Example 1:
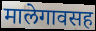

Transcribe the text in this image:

मालेगावसह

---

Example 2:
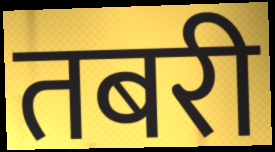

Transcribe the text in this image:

तबरी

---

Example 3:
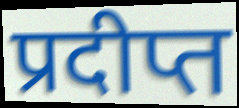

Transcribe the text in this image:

प्रदीप्त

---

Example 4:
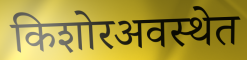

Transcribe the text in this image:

किशोरअवस्थेत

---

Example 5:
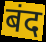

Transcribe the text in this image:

बंद